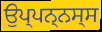
ਉਪ੍ਪਨ੍ਨਸ੍ਸ